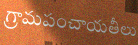
గ్రామపంచాయతీలు